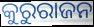
କୁରୁରାଜନ